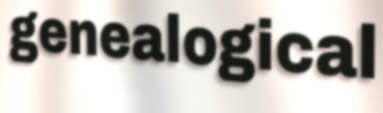
genealogical